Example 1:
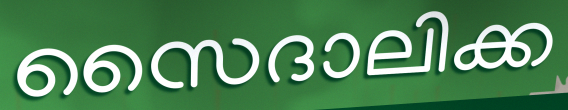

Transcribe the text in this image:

സൈദാലിക്ക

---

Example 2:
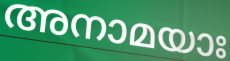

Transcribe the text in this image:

അനാമയാഃ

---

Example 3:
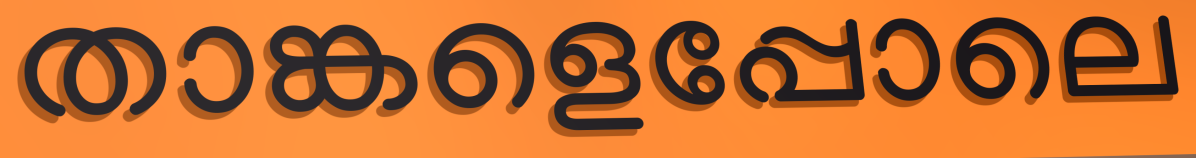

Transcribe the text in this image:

താങ്കളെപ്പോലെ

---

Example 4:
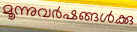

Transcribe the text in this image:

മൂന്നുവർഷങ്ങൾക്കു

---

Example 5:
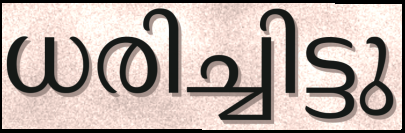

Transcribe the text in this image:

ധരിച്ചിട്ടു